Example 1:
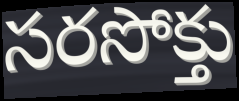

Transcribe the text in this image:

సరసోక్తు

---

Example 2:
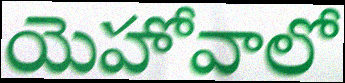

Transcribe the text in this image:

యెహోవాలో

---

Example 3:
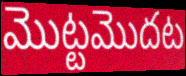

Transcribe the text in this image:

మొట్టమొదట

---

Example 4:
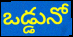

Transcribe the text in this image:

ఒడ్డునో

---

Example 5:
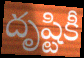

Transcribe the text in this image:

దృష్టికీ